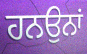
ਹਨਉਨਾਂ